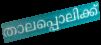
താലപ്പൊലിക്ക്